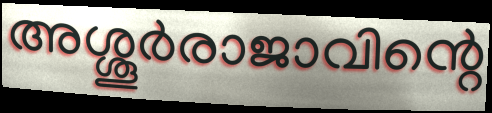
അശ്ശൂർരാജാവിന്റെ